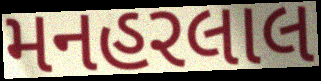
મનહરલાલ